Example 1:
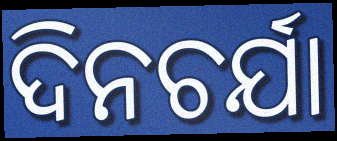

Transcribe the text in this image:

ଦିନଚର୍ଯା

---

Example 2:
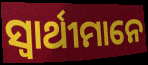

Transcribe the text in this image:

ସ୍ଵାର୍ଥୀମାନେ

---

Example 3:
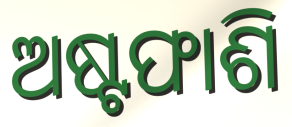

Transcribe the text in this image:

ଅଷ୍ଟଫାଶି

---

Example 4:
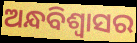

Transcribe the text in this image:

ଅନ୍ଧବିଶ୍ୱାସର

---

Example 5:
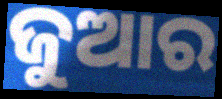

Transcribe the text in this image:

ଜୁଆର